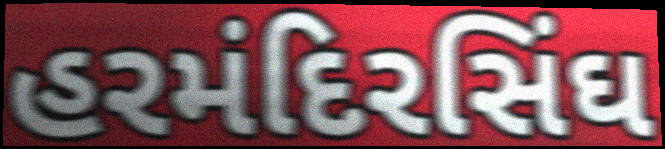
હરમંદિરસિંઘ